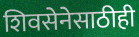
शिवसेनेसाठीही